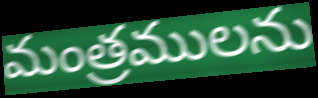
మంత్రములను